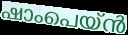
ഷാംപെയ്ൻ